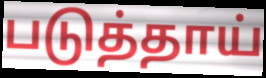
படுத்தாய்